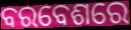
ବରବେଶରେ